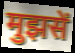
मुझसें